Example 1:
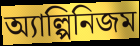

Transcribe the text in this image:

অ্যাল্পিনিজম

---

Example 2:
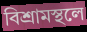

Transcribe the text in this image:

বিশ্রামস্থলে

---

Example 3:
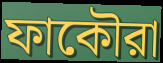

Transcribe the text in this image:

ফাকৌরা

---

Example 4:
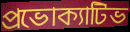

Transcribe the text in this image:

প্রভোক্যাটিভ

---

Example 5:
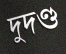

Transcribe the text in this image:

দুদণ্ড